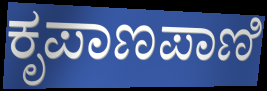
ಕೃಪಾಣಪಾಣಿ